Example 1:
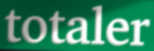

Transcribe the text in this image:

totaler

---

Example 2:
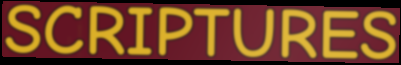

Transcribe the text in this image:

SCRIPTURES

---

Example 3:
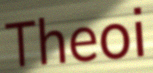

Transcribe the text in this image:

Theoi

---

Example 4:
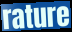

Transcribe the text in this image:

rature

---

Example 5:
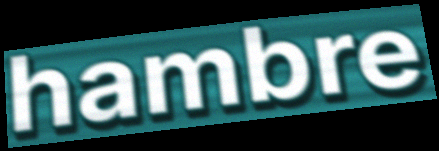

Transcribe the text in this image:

hambre